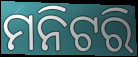
ମନିଟରି